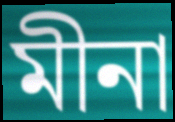
মীনা